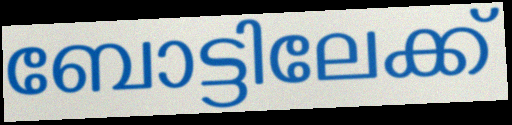
ബോട്ടിലേക്ക്